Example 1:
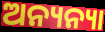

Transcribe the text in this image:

ଅନ୍ୟନ୍ୟା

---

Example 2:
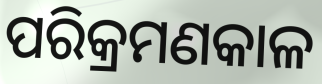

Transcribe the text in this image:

ପରିକ୍ରମଣକାଳ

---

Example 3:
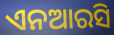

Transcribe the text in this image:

ଏନଆରସି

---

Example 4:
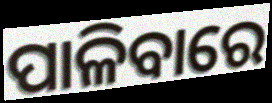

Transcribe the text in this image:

ପାଳିବାରେ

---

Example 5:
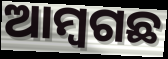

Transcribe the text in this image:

ଆମ୍ୱଗଛ